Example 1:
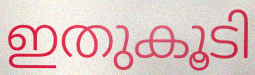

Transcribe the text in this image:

ഇതുകൂടി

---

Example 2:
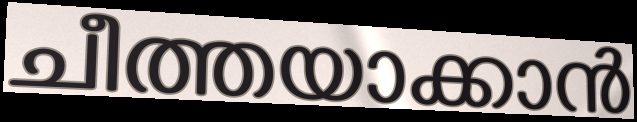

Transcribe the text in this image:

ചീത്തയാക്കാൻ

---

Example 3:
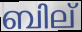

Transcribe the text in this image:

ബില്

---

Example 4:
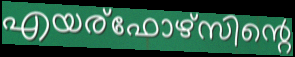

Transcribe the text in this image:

എയര്ഫോഴ്സിന്റെ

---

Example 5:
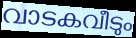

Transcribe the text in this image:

വാടകവീടും